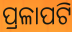
ପ୍ରଳାପଟି